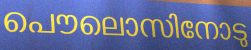
പൌലൊസിനോടു